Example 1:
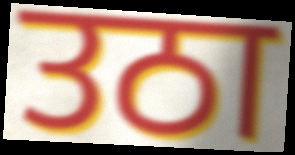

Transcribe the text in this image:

उठा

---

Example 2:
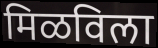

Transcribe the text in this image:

मिळविला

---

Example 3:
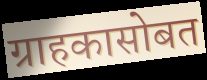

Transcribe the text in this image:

ग्राहकासोबत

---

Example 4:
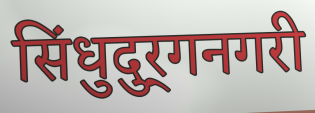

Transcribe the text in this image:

सिंधुदुर्गनगरी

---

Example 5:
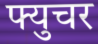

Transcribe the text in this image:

फ्युचर